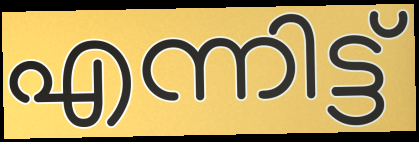
എന്നിട്ട്